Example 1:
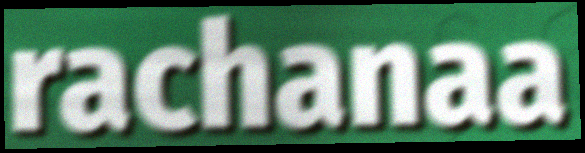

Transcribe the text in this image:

rachanaa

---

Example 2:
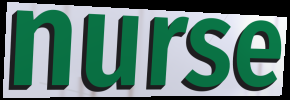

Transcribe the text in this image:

nurse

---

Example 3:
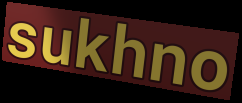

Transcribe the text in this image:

sukhno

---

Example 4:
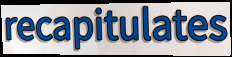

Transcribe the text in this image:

recapitulates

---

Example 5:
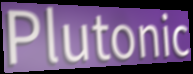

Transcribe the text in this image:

Plutonic